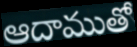
ఆదాముతో